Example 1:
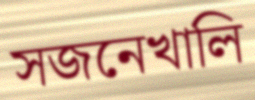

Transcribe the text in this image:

সজনেখালি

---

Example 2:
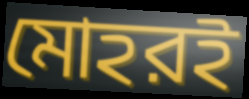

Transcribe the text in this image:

মোহরই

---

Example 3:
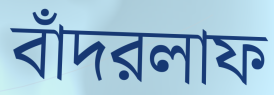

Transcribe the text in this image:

বাঁদরলাফ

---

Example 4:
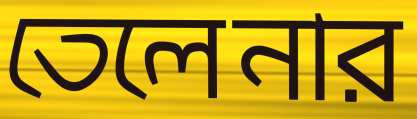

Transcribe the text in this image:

তেলেনার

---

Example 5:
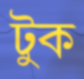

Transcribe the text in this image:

টুক